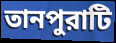
তানপুরাটি